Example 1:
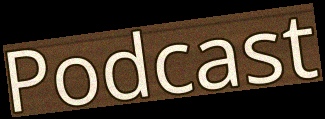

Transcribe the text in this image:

Podcast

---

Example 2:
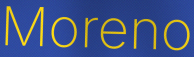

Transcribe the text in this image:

Moreno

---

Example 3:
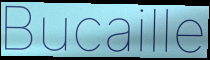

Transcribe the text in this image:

Bucaille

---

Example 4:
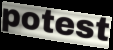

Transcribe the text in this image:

potest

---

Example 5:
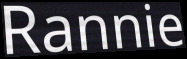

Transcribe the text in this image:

Rannie